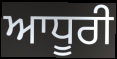
ਆਧੂਰੀ